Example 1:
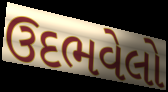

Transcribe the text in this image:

ઉદભવેલો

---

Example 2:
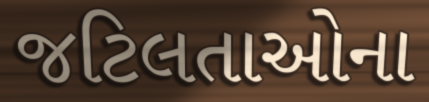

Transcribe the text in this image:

જટિલતાઓના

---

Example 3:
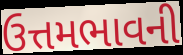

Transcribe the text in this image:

ઉત્તમભાવની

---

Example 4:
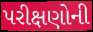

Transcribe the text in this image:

પરીક્ષણોની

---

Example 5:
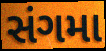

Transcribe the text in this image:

સંગમા